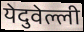
येदुवेल्ली